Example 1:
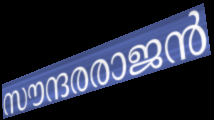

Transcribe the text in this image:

സൗന്ദരരാജൻ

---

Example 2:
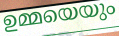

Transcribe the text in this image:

ഉമ്മയെയും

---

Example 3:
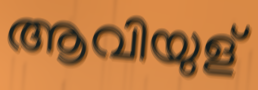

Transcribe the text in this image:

ആവിയുള്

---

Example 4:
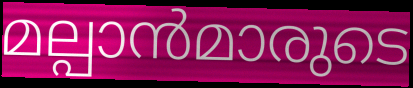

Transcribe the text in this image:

മല്പാൻമാരുടെ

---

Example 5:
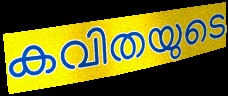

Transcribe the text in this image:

കവിതയുടെ